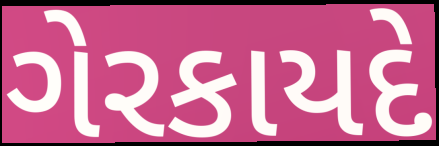
ગેરકાયદે